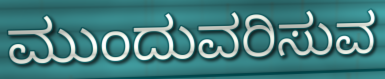
ಮುಂದುವರಿಸುವ